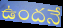
ఉందనే